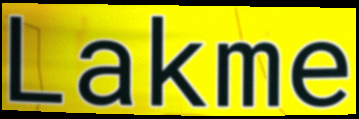
Lakme